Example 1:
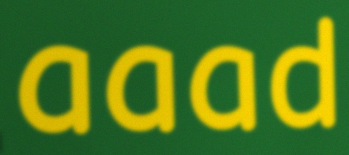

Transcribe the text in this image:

aaad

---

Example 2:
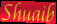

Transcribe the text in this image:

Shuaib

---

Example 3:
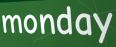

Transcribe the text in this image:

monday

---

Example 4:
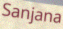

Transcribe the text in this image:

Sanjana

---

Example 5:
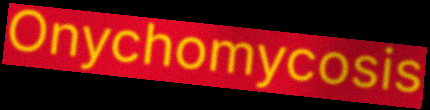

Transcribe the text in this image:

Onychomycosis